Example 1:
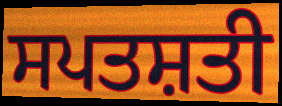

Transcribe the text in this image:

ਸਪਤਸ਼ਤੀ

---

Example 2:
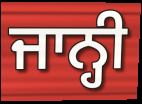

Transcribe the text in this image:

ਜਾਨ੍ਹੀ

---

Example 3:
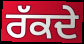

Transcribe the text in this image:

ਰੱਕਦੇ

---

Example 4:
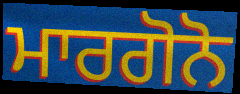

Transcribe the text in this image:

ਮਾਰਗੋਨੋ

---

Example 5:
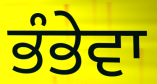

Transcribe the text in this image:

ਭੰਭੇਵਾ